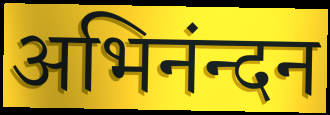
अभिनंन्दन